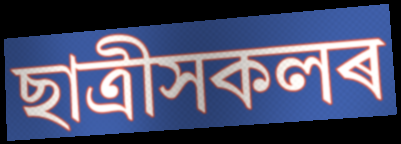
ছাত্ৰীসকলৰ